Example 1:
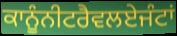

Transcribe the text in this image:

ਕਾਨੂੰਨੀਟਰੈਵਲਏਜੰਟਾਂ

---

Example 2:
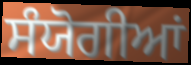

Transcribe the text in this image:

ਸੰਯੋਗੀਆਂ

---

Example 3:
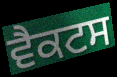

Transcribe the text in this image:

ਵੈਕਟਸ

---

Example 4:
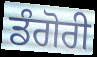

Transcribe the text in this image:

ਡੰਗੋਰੀ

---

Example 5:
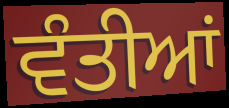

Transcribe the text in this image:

ਵੰਤੀਆਂ